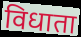
विधाता